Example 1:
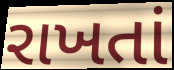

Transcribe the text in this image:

રાખતાં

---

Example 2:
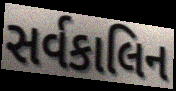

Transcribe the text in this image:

સર્વકાલિન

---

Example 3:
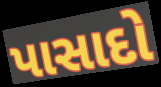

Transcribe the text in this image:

પાસાદો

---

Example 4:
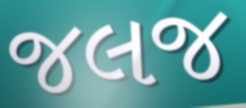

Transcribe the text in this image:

જલજ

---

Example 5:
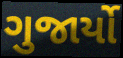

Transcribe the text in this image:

ગુજાર્યો